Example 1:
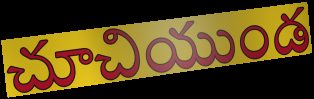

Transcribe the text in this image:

చూచియుండ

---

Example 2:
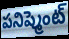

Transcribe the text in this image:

పనిష్మెంట్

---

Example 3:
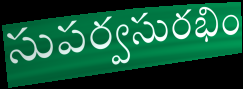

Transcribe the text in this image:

సుపర్వసురభిం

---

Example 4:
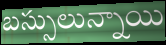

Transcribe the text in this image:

బస్సులున్నాయి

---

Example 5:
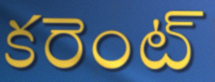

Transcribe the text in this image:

కరెంట్